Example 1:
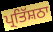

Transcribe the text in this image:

ਪ੍ਰਤਿੱਸ਼ਠਾ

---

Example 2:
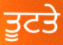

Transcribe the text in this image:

ਤੂਟਤੇ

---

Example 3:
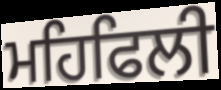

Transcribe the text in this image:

ਮਹਿਫਿਲੀ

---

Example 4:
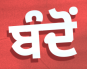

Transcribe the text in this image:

ਬੰਦੋਂ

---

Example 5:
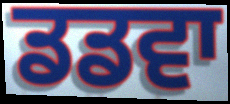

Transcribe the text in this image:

ਡਡਵਾ